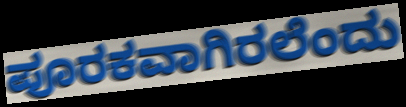
ಪೂರಕವಾಗಿರಲೆಂದು